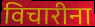
विचारीना